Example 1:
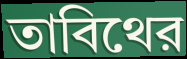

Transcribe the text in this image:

তাবিথের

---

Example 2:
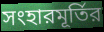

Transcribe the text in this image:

সংহারমূর্তির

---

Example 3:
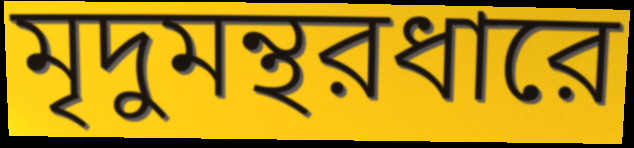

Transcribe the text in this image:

মৃদুমন্থরধারে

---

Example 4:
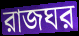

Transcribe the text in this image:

রাজঘর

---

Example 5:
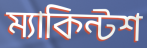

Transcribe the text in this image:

ম্যাকিন্টশ